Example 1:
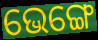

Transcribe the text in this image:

ଭେଙ୍ଗେ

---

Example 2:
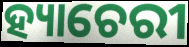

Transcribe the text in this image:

ହ୍ୟାଚେରୀ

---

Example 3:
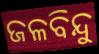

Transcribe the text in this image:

ଜଳବିନ୍ଦୁ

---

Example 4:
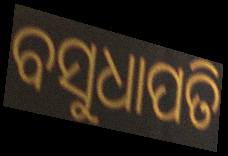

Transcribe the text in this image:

ବସୁଧାପତି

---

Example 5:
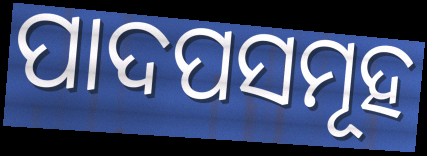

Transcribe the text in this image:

ପାଦପସମୂହ